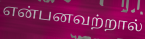
என்பனவற்றால்